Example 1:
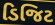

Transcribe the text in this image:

ડિજિટ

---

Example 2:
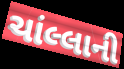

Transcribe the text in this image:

ચાંલ્લાની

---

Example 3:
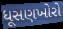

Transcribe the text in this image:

ધૂસણખોરો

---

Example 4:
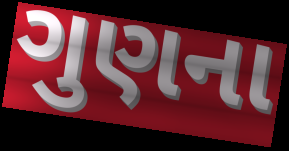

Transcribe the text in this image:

ગુણના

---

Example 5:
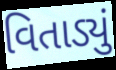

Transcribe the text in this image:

વિતાડ્યું